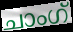
ചാംഗ്